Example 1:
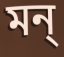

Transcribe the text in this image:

মন্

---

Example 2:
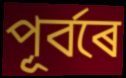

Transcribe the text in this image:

পূৰ্বৰে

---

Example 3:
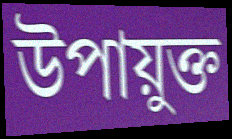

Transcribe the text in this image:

উপায়ুক্ত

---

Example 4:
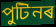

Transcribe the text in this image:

পুটিনৰ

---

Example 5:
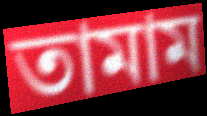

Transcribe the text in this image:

তামাম